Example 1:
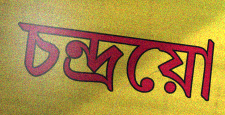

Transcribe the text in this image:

চন্দ্ৰয়ো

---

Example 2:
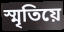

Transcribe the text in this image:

স্মৃতিয়ে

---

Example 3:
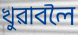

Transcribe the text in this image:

খুৱাবলৈ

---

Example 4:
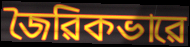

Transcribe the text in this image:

জৈৱিকভাৱে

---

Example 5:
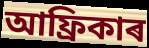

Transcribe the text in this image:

আফ্ৰিকাৰ